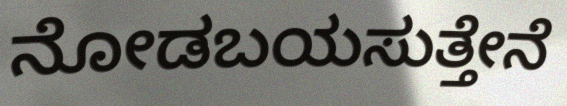
ನೋಡಬಯಸುತ್ತೇನೆ